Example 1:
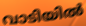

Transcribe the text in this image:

വാടിയിൽ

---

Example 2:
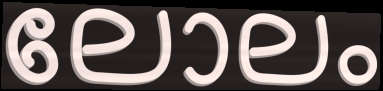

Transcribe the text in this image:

ലോലം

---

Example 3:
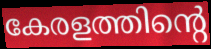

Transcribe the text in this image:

കേരളത്തിന്റെ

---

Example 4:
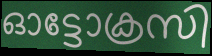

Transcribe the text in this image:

ഓട്ടോക്രസി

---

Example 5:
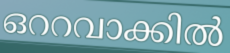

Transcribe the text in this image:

ഒററവാക്കിൽ